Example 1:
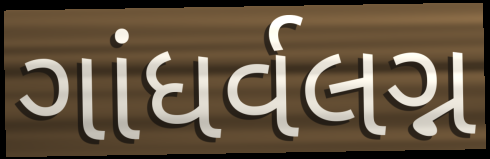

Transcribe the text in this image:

ગાંધર્વલગ્ન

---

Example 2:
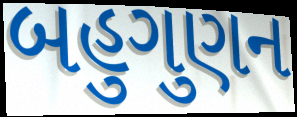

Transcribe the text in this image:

બહુગુણન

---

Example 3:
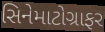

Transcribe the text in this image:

સિનેમાટોગ્રાફર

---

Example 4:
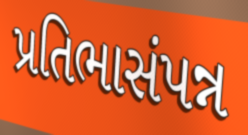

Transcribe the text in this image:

પ્રતિભાસંપન્ન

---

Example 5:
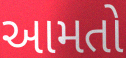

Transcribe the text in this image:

આમતો